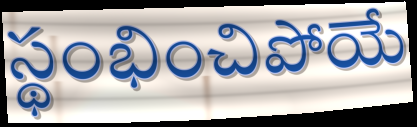
స్థంభించిపోయే